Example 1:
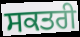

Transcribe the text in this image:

ਸਕਤਰੀ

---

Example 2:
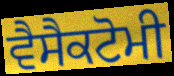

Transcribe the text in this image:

ਵੈਸੈਕਟੋਮੀ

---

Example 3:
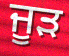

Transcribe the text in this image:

ਜੂੜ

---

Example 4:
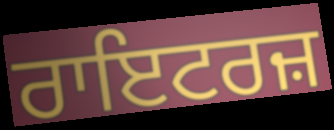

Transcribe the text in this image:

ਰਾਇਟਰਜ਼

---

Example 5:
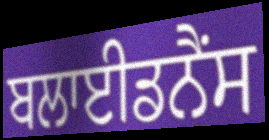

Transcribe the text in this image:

ਬਲਾਈਡਨੈਂਸ